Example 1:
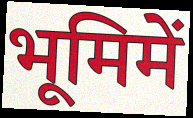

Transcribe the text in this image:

भूमिमें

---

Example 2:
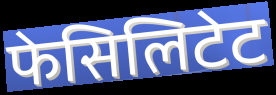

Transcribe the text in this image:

फेसिलिटेट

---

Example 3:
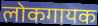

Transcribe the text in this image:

लोकगायक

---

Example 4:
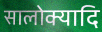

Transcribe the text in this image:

सालोक्यादि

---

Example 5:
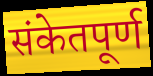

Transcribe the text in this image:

संकेतपूर्ण